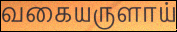
வகையருளாய்